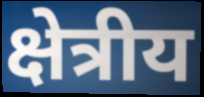
क्षेत्रीय